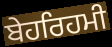
ਬੇਹਰਿਹਮੀ